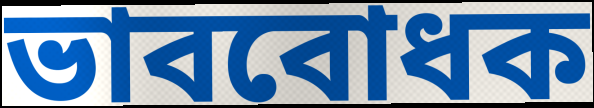
ভাববোধক